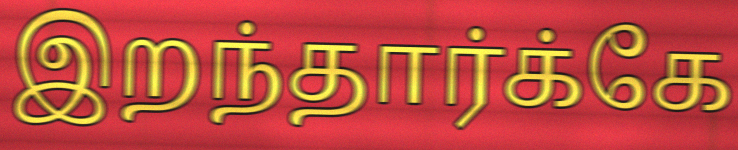
இறந்தார்க்கே